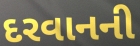
દરવાનની